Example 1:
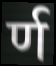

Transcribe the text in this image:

र्ण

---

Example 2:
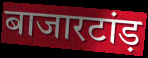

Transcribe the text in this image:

बाजारटांड़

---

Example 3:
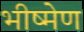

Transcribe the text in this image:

भीष्मेण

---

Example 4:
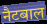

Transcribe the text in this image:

नैटबाल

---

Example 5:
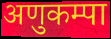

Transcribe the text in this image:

अणुकम्पा